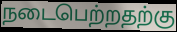
நடைபெற்றதற்கு